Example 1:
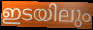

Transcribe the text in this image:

ഇടയിലും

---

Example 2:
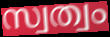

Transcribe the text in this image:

സ്വത്വം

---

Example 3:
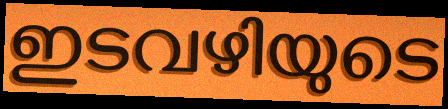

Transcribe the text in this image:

ഇടവഴിയുടെ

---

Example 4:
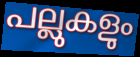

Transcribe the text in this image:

പല്ലുകളും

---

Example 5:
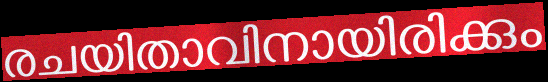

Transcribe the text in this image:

രചയിതാവിനായിരിക്കും